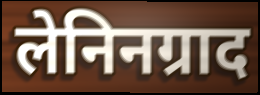
लेनिनग्राद